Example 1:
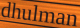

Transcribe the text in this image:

dhulman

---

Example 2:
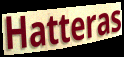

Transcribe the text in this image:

Hatteras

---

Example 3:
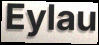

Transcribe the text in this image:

Eylau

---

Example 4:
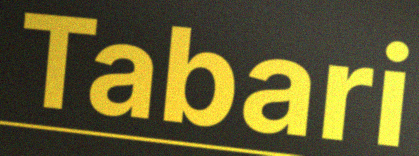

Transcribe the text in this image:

Tabari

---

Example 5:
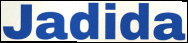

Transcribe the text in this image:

Jadida